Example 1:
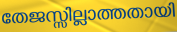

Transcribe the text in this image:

തേജസ്സില്ലാത്തതായി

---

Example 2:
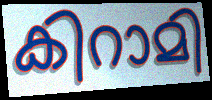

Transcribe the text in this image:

കിറാമി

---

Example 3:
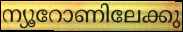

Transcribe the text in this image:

ന്യൂറോണിലേക്കു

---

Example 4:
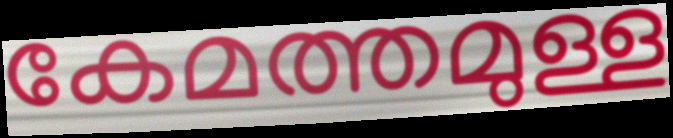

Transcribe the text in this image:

കേമത്തമുള്ള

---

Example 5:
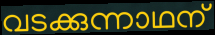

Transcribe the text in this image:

വടക്കുന്നാഥന്